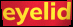
eyelid